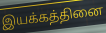
இயக்கத்தினை